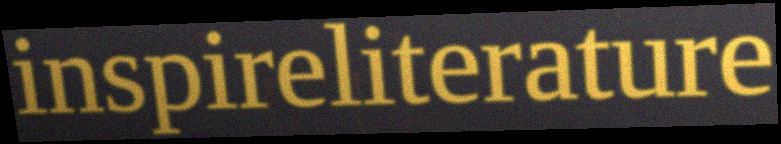
inspireliterature